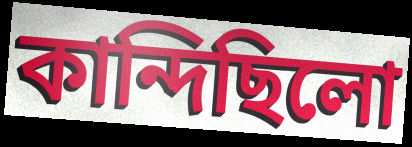
কান্দিছিলো